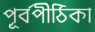
পূর্বপীঠিকা